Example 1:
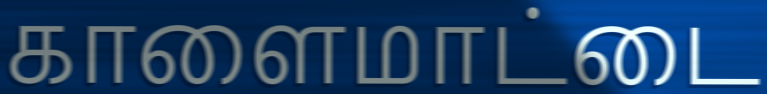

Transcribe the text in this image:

காளைமாட்டை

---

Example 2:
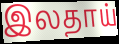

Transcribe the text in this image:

இலதாய்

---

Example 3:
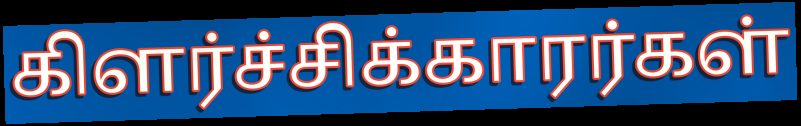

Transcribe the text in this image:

கிளர்ச்சிக்காரர்கள்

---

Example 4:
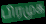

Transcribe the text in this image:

பிரமுக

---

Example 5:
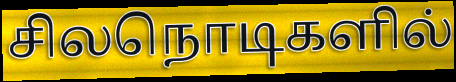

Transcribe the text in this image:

சிலநொடிகளில்